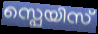
സ്പെയിസ്